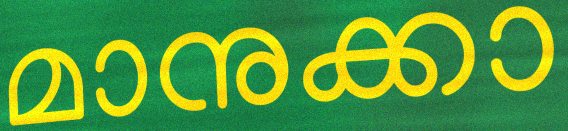
മാനുക്കാ